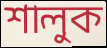
শালুক